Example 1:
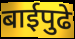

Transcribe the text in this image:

बाईपुढे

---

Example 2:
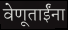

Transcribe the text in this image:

वेणूताईंना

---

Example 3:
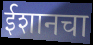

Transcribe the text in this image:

ईशानचा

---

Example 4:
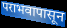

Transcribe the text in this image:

पराभवापासून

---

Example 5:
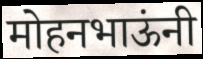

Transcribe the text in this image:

मोहनभाऊंनी